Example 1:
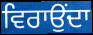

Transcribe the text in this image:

ਵਿਰਾਉਂਦਾ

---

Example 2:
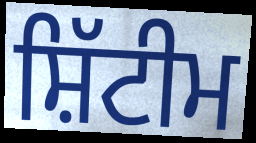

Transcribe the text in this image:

ਸ਼ਿੱਟੀਮ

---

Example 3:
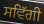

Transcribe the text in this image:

ਸਵਿੱਗੀ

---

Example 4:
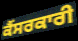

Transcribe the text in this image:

ਕੈਂਸਰਕਾਰੀ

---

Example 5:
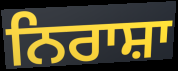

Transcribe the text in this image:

ਨਿਰਾਸ਼ਾ